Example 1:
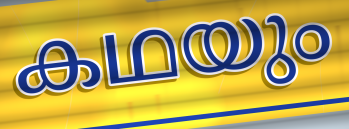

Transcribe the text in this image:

കഥയും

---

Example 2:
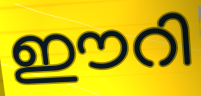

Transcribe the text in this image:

ഈറി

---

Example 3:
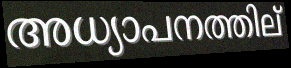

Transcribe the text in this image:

അധ്യാപനത്തില്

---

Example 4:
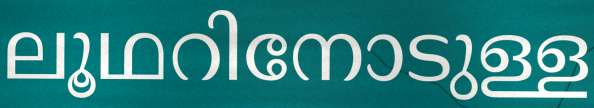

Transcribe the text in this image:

ലൂഥറിനോടുള്ള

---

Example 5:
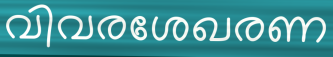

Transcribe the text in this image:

വിവരശേഖരണ